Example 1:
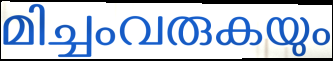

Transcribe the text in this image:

മിച്ചംവരുകയും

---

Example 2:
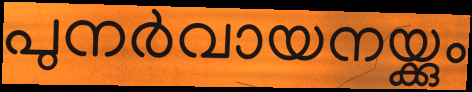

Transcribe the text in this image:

പുനർവായനയ്ക്കും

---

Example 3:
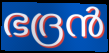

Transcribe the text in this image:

ഭദ്രൻ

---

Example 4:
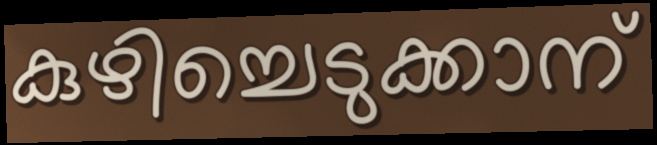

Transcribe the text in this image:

കുഴിച്ചെടുക്കാന്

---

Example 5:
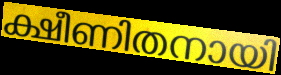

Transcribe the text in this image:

ക്ഷീണിതനായി